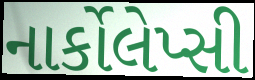
નાર્કોલેપ્સી